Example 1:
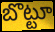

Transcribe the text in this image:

బొట్టూ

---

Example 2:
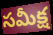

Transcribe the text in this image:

సమీక్ష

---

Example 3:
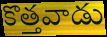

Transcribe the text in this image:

కొత్తవాడు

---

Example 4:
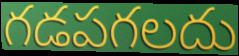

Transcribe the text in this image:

గడపగలదు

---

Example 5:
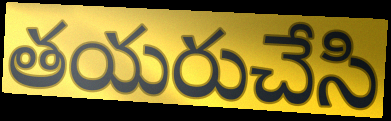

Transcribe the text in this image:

తయరుచేసి